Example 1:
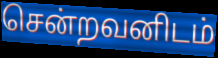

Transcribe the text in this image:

சென்றவனிடம்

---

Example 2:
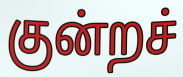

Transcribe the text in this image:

குன்றச்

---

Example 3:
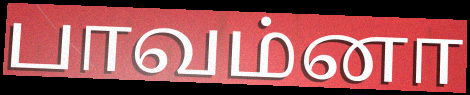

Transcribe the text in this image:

பாவம்னா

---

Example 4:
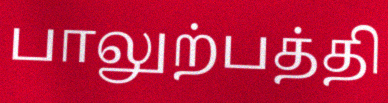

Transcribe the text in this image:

பாலுற்பத்தி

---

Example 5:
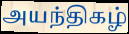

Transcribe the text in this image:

அயந்திகழ்